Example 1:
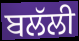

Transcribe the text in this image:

ਬਲੱਲੀ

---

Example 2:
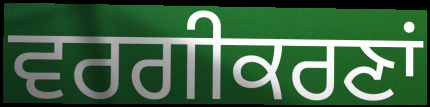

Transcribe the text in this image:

ਵਰਗੀਕਰਣਾਂ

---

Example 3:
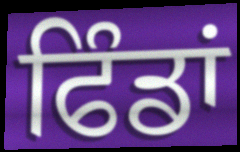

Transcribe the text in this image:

ਫਿੰਡਾਂ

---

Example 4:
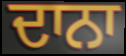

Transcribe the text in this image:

ਦਾਨਾ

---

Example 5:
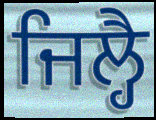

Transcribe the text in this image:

ਜਿਲ੍ਹੈ